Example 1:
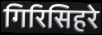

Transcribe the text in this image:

गिरिसिहरे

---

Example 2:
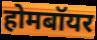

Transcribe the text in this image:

होमबॉयर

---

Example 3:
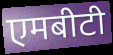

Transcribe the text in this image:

एमबीटी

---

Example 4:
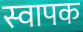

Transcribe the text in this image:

स्‍वापक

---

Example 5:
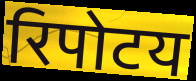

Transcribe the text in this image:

रिपोटय